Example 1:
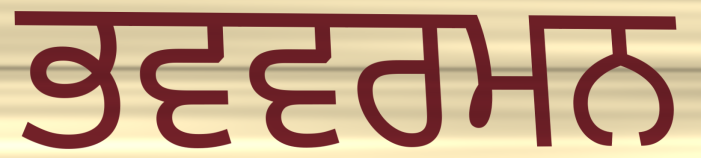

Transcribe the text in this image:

ਭਵਵਰਮਨ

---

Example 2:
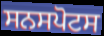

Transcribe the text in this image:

ਸਨਸਪੋਟਸ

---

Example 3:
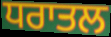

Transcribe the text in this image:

ਧਰਾਤਲ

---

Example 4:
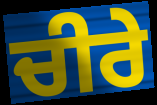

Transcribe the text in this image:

ਚੀਰੇ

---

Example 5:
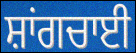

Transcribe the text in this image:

ਸ਼ਾਂਗਚਾਈ